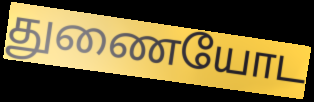
துணையோட